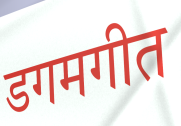
डगमगीत